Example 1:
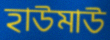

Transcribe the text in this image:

হাউমাউ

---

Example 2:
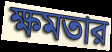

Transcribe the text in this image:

ক্ষমতার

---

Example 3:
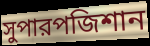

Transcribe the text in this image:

সুপারপজিশান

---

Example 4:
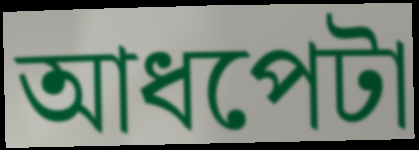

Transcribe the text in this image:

আধপেটা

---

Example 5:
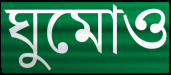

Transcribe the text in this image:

ঘুমোও